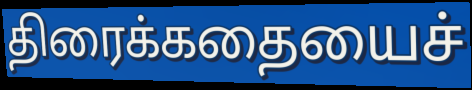
திரைக்கதையைச்